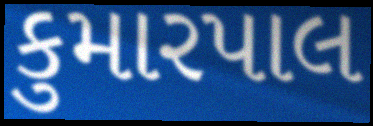
કુમારપાલ